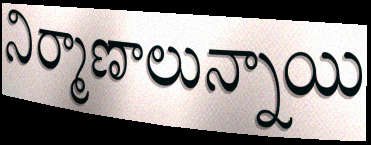
నిర్మాణాలున్నాయి